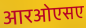
आरओएसए